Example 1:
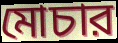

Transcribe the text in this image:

মোচার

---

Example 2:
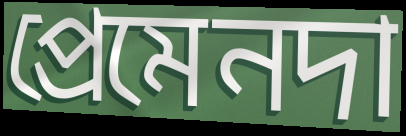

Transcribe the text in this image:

প্রেমেনদা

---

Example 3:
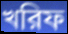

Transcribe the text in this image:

খরিফ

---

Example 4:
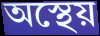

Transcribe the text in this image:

অস্থেয়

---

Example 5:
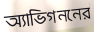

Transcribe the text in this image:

অ্যাভিগননের